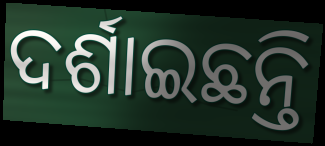
ଦର୍ଶାଇଛନ୍ତି